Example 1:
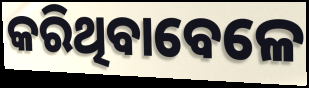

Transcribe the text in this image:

କରିଥିବାବେଳେ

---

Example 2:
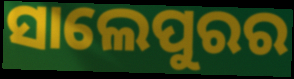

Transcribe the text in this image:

ସାଲେପୁରର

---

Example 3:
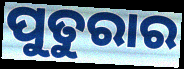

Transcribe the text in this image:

ପୁତୁରାର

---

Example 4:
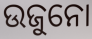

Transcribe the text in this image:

ଉଜୁନୋ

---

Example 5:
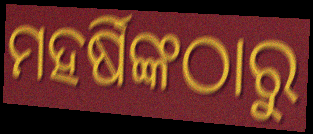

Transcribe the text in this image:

ମହର୍ଷିଙ୍କଠାରୁ